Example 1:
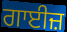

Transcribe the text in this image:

ਗਾਈਜ਼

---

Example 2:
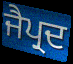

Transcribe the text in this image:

ਜੈਪ੍ਰਦ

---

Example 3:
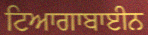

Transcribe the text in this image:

ਟਿਆਗਾਬਾਈਨ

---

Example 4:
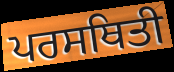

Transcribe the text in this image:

ਪਰਸਥਿਤੀ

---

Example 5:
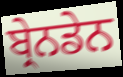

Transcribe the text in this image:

ਬ੍ਰੇਨਡੇਨ